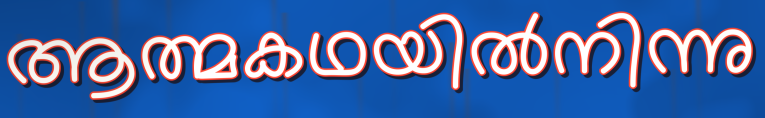
ആത്മകഥയിൽനിന്നു